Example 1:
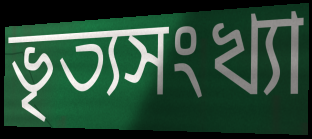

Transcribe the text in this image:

ভৃত্যসংখ্যা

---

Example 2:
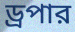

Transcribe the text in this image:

ড্রপার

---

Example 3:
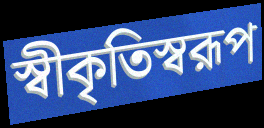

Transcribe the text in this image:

স্বীকৃতিস্বরূপ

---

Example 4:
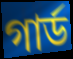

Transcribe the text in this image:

গার্ড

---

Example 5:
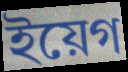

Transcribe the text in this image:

ইয়েগ